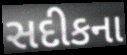
સદીકના